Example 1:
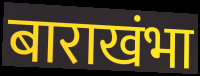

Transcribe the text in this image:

बाराखंभा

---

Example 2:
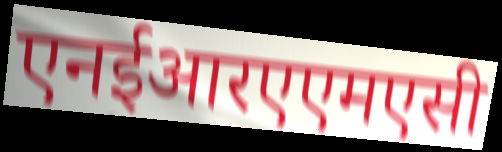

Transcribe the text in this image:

एनईआरएएमएसी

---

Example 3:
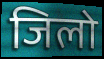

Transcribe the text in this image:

जिलो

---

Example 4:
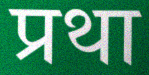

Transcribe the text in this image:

प्रथा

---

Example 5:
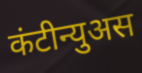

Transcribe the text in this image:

कंटीन्युअस